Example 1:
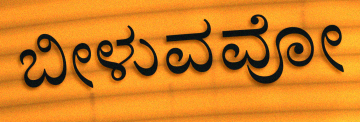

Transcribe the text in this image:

ಬೀಳುವವೋ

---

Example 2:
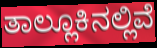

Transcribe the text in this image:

ತಾಲ್ಲೂಕಿನಲ್ಲಿವೆ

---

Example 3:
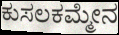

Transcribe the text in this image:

ಕುಸಲಕಮ್ಮೇನ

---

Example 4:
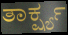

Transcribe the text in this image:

ತಾರ್ಕ್ಷ್ಯ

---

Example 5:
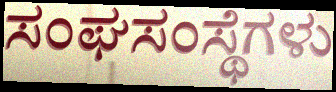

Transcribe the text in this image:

ಸಂಘಸಂಸ್ಥೆಗಳು